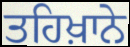
ਤਹਿਖ਼ਾਨੇ